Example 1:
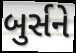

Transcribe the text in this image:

બુર્સને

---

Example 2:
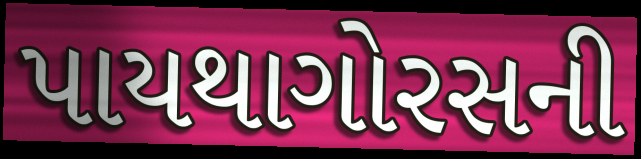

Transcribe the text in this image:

પાયથાગોરસની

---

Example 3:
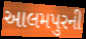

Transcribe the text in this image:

આલમપુરની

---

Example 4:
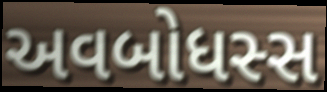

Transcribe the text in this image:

અવબોધસ્સ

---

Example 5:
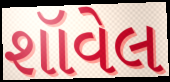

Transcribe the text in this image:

શૉવેલ